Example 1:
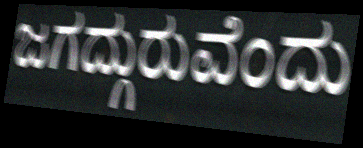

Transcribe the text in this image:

ಜಗದ್ಗುರುವೆಂದು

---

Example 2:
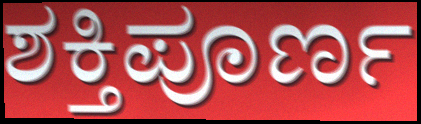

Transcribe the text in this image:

ಶಕ್ತಿಪೂರ್ಣ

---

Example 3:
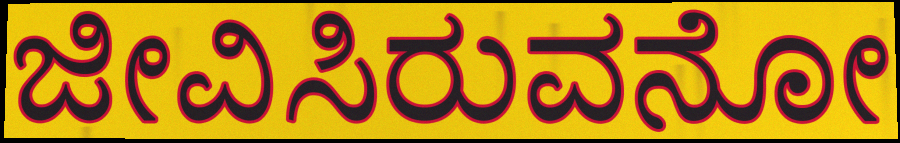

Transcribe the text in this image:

ಜೀವಿಸಿರುವನೋ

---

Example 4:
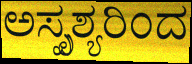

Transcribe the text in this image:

ಅಸ್ಪೃಶ್ಯರಿಂದ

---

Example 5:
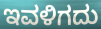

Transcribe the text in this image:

ಇವಳಿಗದು